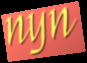
nyn